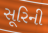
સૂરિની